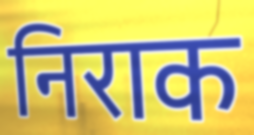
निराक